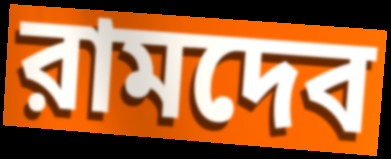
রামদেব